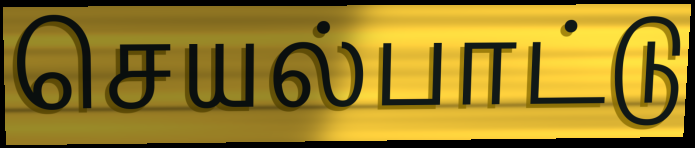
செயல்பாட்டு